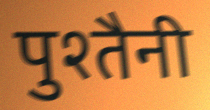
पुश्तैनी